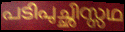
പടിപുച്ഛിസ്സഥ